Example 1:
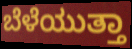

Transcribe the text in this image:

ಬೆಳೆಯುತ್ತಾ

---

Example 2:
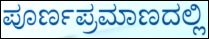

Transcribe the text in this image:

ಪೂರ್ಣಪ್ರಮಾಣದಲ್ಲಿ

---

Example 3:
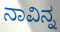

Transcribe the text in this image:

ನಾವಿನ್ನ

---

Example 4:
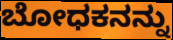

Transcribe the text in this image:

ಬೋಧಕನನ್ನು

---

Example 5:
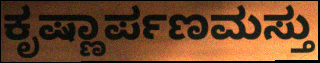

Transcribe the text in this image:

ಕೃಷ್ಣಾರ್ಪಣಮಸ್ತು